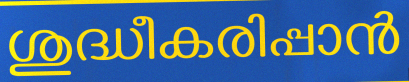
ശുദ്ധീകരിപ്പാൻ